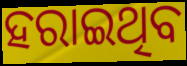
ହରାଇଥିବ